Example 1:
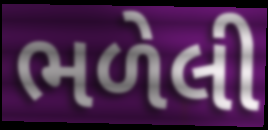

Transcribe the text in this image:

ભળેલી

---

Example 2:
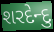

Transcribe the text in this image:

શરદેન્દુ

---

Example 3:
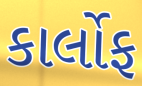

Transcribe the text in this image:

કાર્લોફ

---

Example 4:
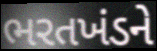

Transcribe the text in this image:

ભરતખંડને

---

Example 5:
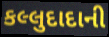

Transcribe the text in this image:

કલ્લુદાદાની